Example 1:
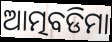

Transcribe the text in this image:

ଆତ୍ମବଡିମା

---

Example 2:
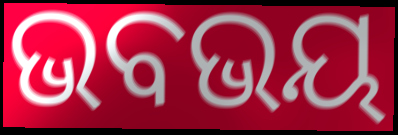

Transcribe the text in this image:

ଭବଭୟ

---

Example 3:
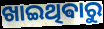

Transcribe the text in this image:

ଖାଇଥିଵାରୁ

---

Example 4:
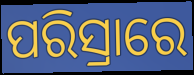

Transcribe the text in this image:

ପରିସ୍ରାରେ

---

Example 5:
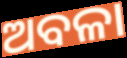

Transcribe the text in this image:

ଅବଳା